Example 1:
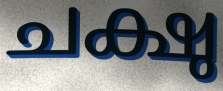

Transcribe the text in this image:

ചക്ഷു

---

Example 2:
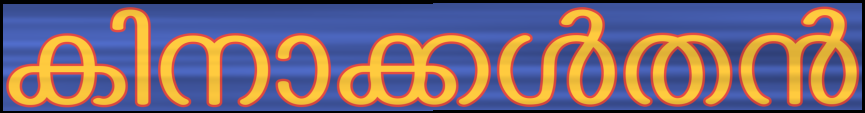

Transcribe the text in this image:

കിനാക്കൾതൻ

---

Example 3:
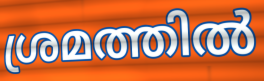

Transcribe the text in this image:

ശ്രമത്തിൽ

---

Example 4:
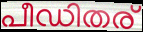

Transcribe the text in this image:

പീഡിതര്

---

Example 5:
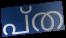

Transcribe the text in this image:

പ്ത